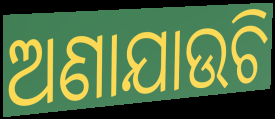
ଅଣାଯାଉଚି